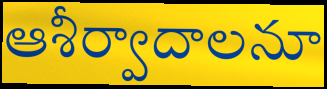
ఆశీర్వాదాలనూ